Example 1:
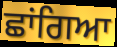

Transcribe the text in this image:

ਛਾਂਗਿਆ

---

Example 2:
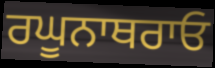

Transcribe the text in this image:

ਰਘੂਨਾਥਰਾਓ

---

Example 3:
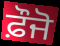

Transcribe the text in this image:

ਫ਼ੌਜੋ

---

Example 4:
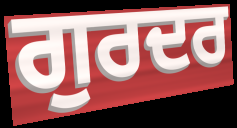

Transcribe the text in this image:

ਗੁਰਦਰ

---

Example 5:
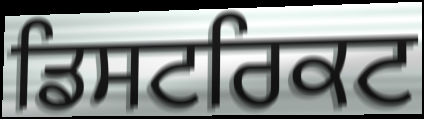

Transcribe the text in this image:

ਡਿਸਟਰਿਕਟ